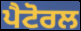
ਪੈਟੋਰਲ